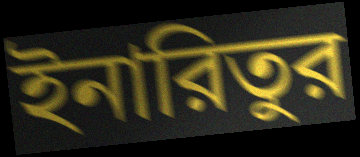
ইনারিতুর